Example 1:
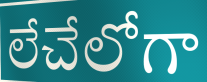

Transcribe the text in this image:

లేచేలోగా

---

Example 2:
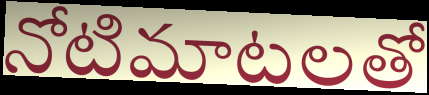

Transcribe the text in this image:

నోటిమాటలతో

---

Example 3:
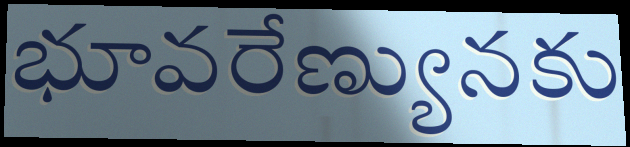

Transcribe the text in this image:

భూవరేణ్యునకు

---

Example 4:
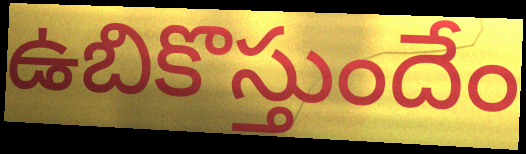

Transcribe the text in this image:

ఉబికొస్తుందేం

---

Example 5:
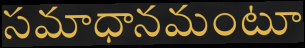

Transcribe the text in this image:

సమాధానమంటూ